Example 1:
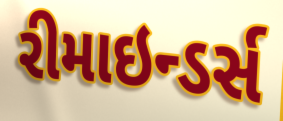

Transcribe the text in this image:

રીમાઇન્ડર્સ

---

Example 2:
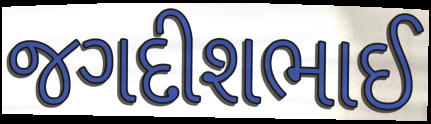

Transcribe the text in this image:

જગદીશભાઈ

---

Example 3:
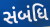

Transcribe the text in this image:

સંબંધિ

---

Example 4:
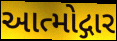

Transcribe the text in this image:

આત્મોદ્ગાર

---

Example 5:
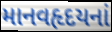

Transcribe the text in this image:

માનવહૃદયનાં